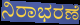
ನಿರಾಭರಣೆ